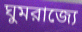
ঘুমরাজ্যে